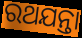
ରଥଯନ୍ତା